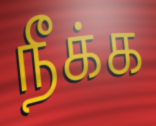
நீக்க